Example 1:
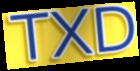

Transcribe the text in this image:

TXD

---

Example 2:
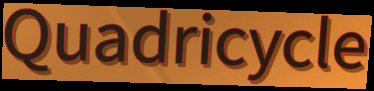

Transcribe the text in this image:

Quadricycle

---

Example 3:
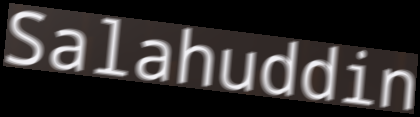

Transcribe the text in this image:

Salahuddin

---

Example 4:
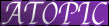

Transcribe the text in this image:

ATOPIC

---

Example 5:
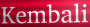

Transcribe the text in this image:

Kembali